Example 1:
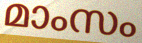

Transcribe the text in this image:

മാംസം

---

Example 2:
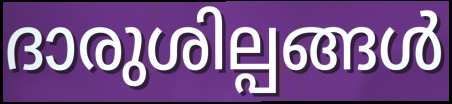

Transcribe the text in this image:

ദാരുശില്പങ്ങൾ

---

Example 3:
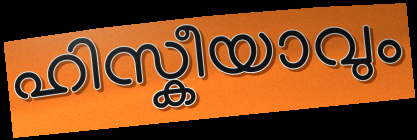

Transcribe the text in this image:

ഹിസ്കീയാവും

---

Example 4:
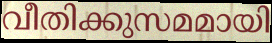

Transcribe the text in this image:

വീതിക്കുസമമായി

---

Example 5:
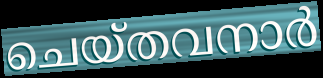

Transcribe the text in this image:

ചെയ്തവനാർ